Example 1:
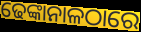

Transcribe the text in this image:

ଢେଙ୍କାନାଳଠାରେ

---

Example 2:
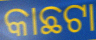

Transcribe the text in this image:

କାଛଟା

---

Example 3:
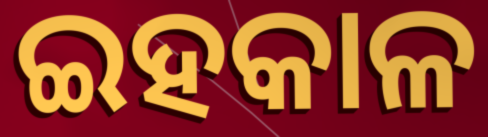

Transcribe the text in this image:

ଇହକାଳ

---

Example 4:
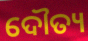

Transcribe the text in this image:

ଦୌତ୍ୟ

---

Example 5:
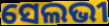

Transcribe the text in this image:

ସେଲଭୀ